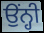
ਉਂਨ੍ਹੀ